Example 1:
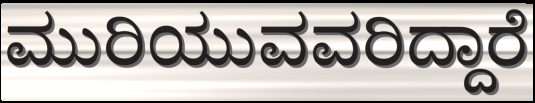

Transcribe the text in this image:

ಮುರಿಯುವವರಿದ್ದಾರೆ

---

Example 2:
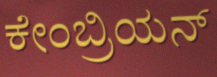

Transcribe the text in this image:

ಕೇಂಬ್ರಿಯನ್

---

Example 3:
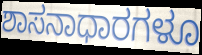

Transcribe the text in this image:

ಶಾಸನಾಧಾರಗಳೂ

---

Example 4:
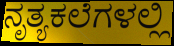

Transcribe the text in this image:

ನೃತ್ಯಕಲೆಗಳಲ್ಲಿ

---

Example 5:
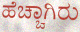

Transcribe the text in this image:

ಹೆಚ್ಚಾಗಿರು